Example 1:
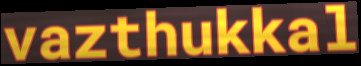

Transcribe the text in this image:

vazthukkal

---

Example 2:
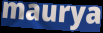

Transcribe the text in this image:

maurya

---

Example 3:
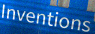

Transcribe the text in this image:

Inventions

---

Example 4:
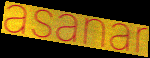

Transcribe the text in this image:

asanar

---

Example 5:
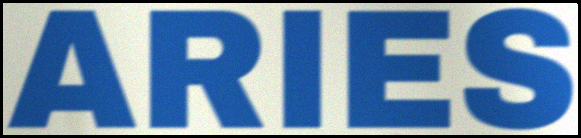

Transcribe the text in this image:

ARIES